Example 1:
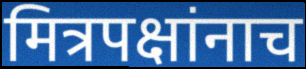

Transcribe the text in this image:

मित्रपक्षांनाच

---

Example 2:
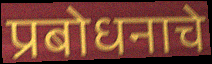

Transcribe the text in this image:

प्रबोधनाचे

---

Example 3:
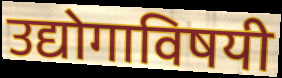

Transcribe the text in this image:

उद्योगाविषयी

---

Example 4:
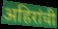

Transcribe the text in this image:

अहिरांची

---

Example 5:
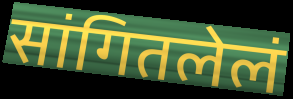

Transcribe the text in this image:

सांगितलेलं